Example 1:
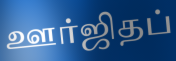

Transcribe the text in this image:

ஊர்ஜிதப்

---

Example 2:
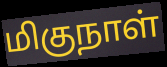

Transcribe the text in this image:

மிகுநாள்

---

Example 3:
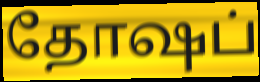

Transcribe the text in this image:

தோஷப்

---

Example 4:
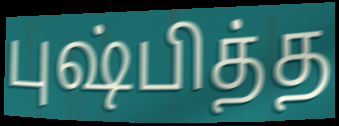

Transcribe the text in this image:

புஷ்பித்த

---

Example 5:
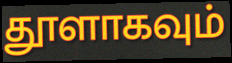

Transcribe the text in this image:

தூளாகவும்